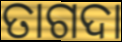
ତାଗଦା